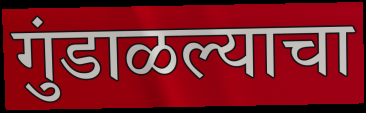
गुंडाळल्याचा